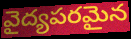
వైద్యపరమైన